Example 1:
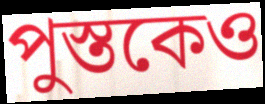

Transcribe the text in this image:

পুস্তকেও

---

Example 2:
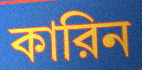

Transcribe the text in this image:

কারিন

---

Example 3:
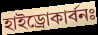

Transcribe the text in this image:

হাইড্রোকার্বনঃ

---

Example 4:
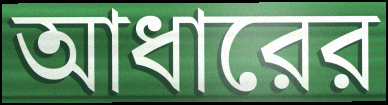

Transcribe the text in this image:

আধারের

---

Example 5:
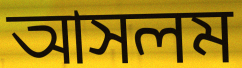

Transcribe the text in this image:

আসলম